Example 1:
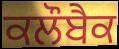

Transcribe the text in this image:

ਕਲੌਬੈਕ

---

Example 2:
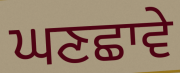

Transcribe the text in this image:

ਘਣਛਾਵੇ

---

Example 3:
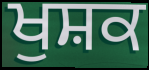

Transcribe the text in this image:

ਖੁਸ਼ਕ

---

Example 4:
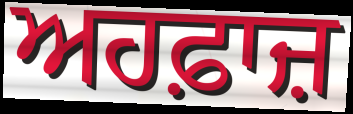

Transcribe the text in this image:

ਅਹਫ਼ਾਜ਼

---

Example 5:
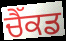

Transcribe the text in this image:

ਚੈੱਕਡ